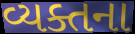
વ્યક્તના